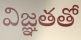
విజ్ఞతతో